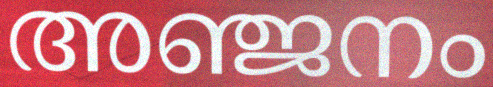
അഞ്ജനം